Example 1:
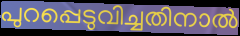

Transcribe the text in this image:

പുറപ്പെടുവിച്ചതിനാൽ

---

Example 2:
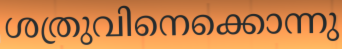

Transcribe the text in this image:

ശത്രുവിനെക്കൊന്നു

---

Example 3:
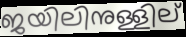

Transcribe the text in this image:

ജയിലിനുള്ളില്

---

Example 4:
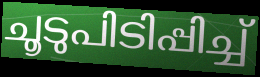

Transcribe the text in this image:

ചൂടുപിടിപ്പിച്ച്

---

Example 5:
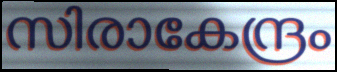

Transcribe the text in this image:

സിരാകേന്ദ്രം